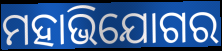
ମହାଭିଯୋଗର